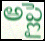
అప్లై